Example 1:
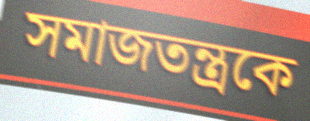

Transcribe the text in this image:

সমাজতন্ত্রকে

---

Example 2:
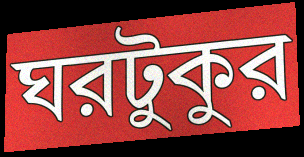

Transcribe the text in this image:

ঘরটুকুর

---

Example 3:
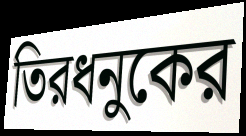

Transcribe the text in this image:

তিরধনুকের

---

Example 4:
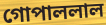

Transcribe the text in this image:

গোপাললাল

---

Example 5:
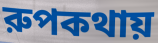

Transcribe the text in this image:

রুপকথায়